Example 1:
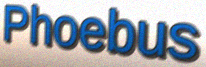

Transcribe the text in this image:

Phoebus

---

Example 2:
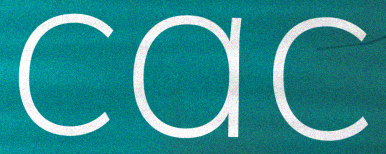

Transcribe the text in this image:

cac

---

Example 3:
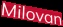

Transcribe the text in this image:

Milovan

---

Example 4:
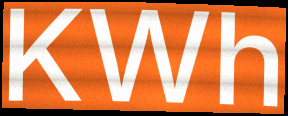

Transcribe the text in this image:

KWh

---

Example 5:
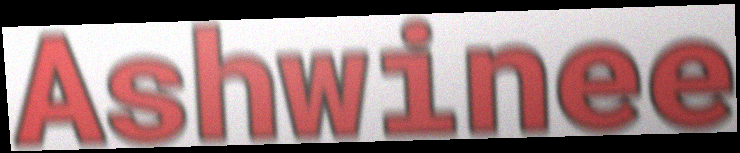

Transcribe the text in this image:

Ashwinee